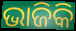
ଭାଜିକି